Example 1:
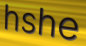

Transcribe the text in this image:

hshe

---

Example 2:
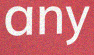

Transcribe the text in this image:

any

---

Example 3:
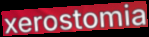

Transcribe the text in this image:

xerostomia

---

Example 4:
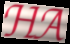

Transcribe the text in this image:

HA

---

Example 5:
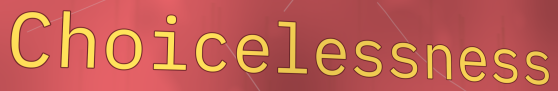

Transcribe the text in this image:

Choicelessness